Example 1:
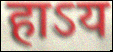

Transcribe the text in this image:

हाऽय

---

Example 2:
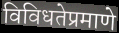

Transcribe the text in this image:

विविधतेप्रमाणे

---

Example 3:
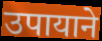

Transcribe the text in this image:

उपायाने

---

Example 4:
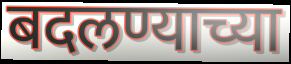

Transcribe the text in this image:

बदलण्याच्या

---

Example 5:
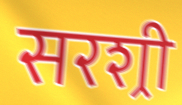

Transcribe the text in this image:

सरश्री